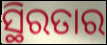
ସ୍ଥିରତାର